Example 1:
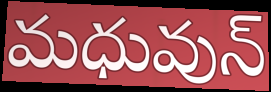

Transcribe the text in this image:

మధువున్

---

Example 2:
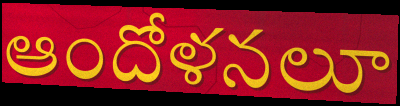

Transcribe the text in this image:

ఆందోళనలూ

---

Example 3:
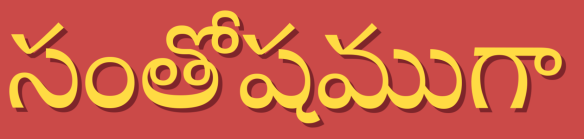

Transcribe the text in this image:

సంతోషముగా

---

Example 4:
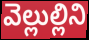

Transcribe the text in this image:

వెల్లుల్లిని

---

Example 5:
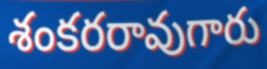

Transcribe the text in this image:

శంకరరావుగారు